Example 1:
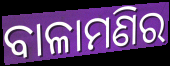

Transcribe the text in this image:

ବାଳାମଣିର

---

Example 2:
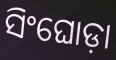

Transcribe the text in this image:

ସିଂଘୋଡ଼ା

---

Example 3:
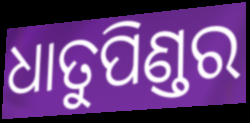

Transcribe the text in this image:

ଧାତୁପିଣ୍ଡର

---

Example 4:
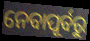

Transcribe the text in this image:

ନେବାପୂର୍ବରୁ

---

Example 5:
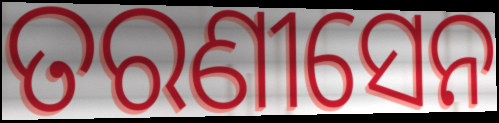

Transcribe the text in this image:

ତରଣୀସେନ